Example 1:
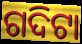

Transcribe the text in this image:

ଗଦିଟା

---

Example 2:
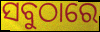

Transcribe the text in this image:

ସବୁଠାରେ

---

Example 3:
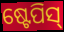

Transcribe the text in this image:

ଷ୍ଟେପିସ୍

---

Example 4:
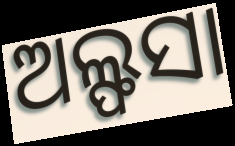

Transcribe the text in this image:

ଅଲ୍ଫସା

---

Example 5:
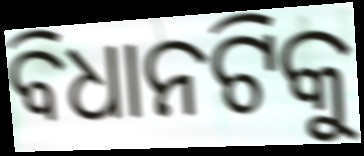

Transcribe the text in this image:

ବିଧାନଟିକୁ